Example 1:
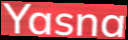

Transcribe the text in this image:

Yasna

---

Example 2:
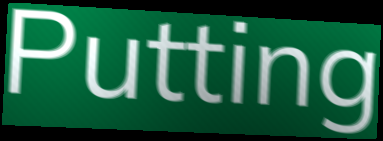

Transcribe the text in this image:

Putting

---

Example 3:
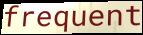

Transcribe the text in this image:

frequent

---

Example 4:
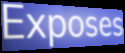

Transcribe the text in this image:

Exposes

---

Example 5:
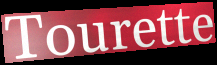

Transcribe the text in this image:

Tourette